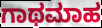
ಗಾಥಮಾಹ